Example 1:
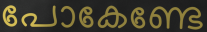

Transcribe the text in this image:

പോകേണ്ടേ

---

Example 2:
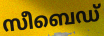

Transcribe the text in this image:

സീബെഡ്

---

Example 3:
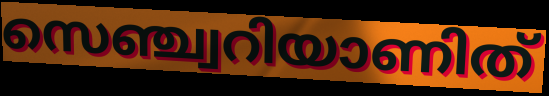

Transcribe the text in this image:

സെഞ്ച്വറിയാണിത്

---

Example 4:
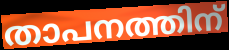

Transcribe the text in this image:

താപനത്തിന്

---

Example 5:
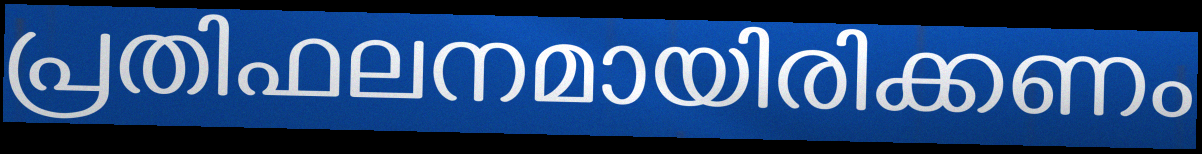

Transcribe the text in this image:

പ്രതിഫലനമായിരിക്കണം